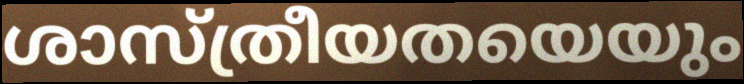
ശാസ്ത്രീയതയെയും